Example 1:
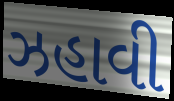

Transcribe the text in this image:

ઝહાવી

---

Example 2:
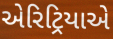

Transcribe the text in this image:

એરિટ્રિયાએ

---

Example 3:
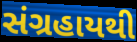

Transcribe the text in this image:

સંગ્રહાયથી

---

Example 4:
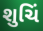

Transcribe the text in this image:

શુચિં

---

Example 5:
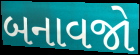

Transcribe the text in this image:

બનાવજો